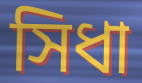
সিধা